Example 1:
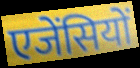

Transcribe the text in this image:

एजेंसियों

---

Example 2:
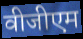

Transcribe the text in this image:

वीजीएम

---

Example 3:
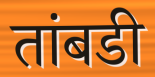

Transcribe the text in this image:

तांबडी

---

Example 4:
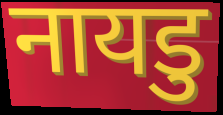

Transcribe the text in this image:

नायडु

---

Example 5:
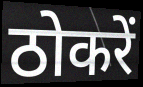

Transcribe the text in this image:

ठोकरें